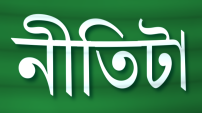
নীতিটা